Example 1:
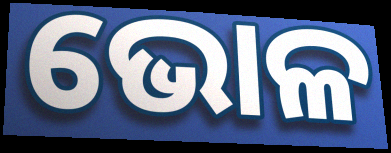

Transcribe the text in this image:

ଭୋଳ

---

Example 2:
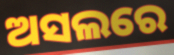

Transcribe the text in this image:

ଅସଲରେ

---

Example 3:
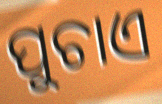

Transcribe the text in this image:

ପୁଚାଏ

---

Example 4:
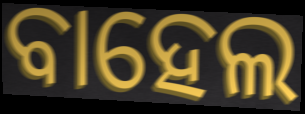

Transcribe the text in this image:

ବାହେଲ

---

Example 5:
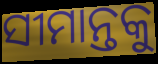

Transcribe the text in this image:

ସୀମାନ୍ତକୁ